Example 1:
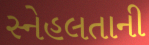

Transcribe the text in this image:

સ્નેહલતાની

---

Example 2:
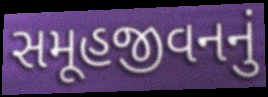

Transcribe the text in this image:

સમૂહજીવનનું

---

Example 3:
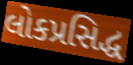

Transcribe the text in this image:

લોકપ્રસિદ્ધ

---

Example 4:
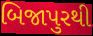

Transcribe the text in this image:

બિજાપુરથી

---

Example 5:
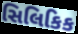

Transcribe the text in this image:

સિલિકિક